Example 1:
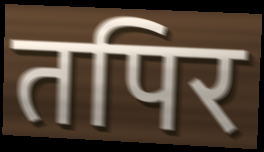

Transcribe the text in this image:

तपिर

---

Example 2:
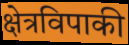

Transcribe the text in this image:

क्षेत्रविपाकी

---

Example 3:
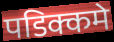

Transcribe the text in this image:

पडिक्कमे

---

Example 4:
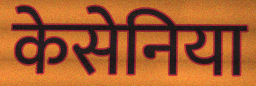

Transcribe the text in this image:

केसेनिया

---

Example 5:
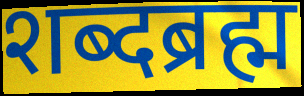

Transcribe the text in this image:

शब्दब्रह्म